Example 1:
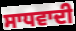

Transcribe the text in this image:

ਸਾਧਵਾਦੀ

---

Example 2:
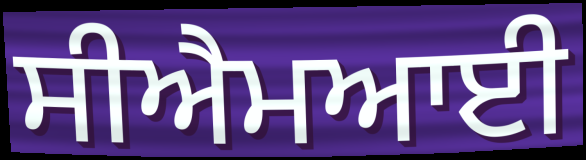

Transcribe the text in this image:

ਸੀਐਮਆਈ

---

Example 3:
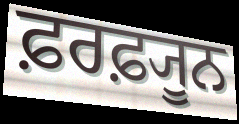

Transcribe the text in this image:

ਫ਼ਰਫ਼੍ਯੂਨ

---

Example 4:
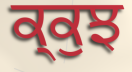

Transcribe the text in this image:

ਕ੍ਕੁਝ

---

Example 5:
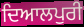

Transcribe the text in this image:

ਦਿਆਲਪੁਰੀ